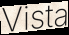
Vista